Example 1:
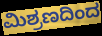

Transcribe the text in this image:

ಮಿಶ್ರಣದಿಂದ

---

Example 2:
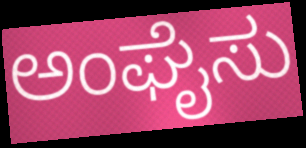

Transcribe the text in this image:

ಅಂಘೈಸು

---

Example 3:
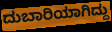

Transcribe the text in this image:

ದುಬಾರಿಯಾಗಿದ್ದು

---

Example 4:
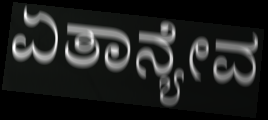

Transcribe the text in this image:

ಏತಾನ್ಯೇವ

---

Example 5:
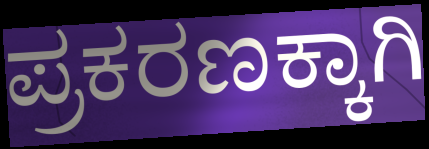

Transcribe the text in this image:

ಪ್ರಕರಣಕ್ಕಾಗಿ